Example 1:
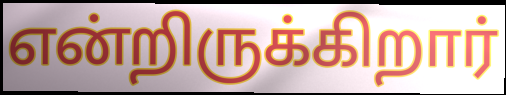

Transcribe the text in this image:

என்றிருக்கிறார்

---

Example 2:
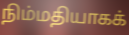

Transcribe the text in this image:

நிம்மதியாகக்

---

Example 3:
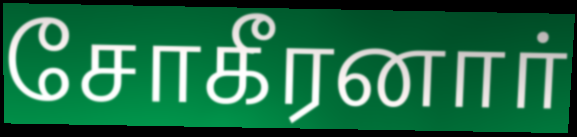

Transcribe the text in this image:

சோகீரனார்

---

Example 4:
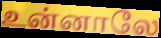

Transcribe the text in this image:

உன்னாலே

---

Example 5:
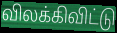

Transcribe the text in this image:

விலக்கிவிட்டு